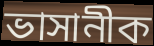
ভাসানীক